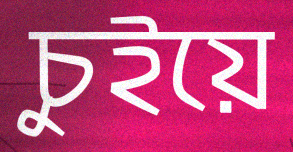
চুইয়ে